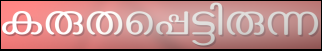
കരുതപ്പെട്ടിരുന്ന